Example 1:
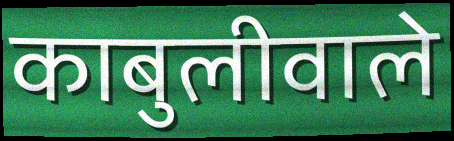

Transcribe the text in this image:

काबुलीवाले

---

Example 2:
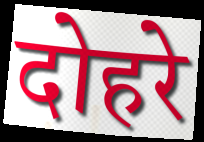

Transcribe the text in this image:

दोहरे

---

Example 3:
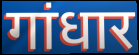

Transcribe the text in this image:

गांधार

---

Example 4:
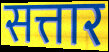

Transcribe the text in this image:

सत्तार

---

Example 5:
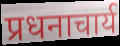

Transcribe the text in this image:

प्रधनाचार्य